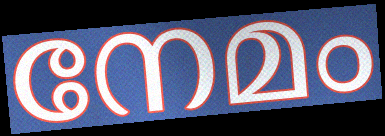
നേമം